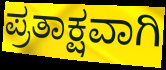
ಪ್ರತಾಕ್ಷವಾಗಿ